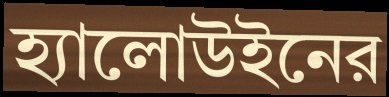
হ্যালোউইনের